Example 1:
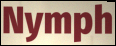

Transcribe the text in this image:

Nymph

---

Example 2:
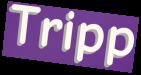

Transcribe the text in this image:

Tripp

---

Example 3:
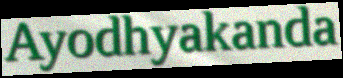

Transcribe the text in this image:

Ayodhyakanda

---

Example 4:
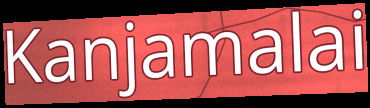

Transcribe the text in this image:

Kanjamalai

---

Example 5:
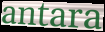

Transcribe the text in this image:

antara